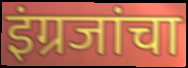
इंग्रजांचा